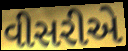
વીસરીએ